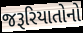
જરૂરિયાતોનો